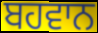
ਬਹਵਾਨ